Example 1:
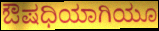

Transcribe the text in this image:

ಔಷಧಿಯಾಗಿಯೂ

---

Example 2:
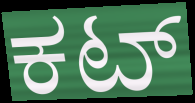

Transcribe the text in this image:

ಕಟ್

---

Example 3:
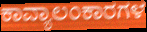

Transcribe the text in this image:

ಕಾವ್ಯಾಲಂಕಾರಗಳ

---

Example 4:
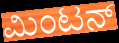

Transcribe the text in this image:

ಮಿಂಟನ್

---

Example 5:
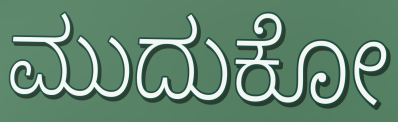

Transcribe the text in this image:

ಮುದುಕೋ